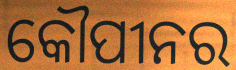
କୌପୀନର